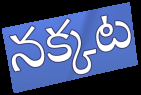
నక్కట